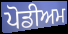
ਪੋਡੀਅਮ